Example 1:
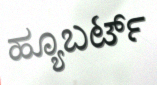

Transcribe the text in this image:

ಹ್ಯೂಬರ್ಟ್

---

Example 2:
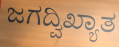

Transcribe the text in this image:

ಜಗದ್ವಿಖ್ಯಾತ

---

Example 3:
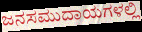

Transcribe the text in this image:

ಜನಸಮುದಾಯಗಳಲ್ಲಿ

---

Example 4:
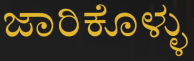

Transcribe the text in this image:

ಜಾರಿಕೊಳ್ಳು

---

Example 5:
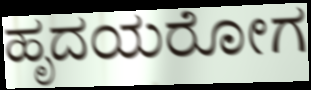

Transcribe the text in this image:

ಹೃದಯರೋಗ